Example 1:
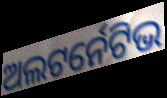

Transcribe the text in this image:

ଅଲଟର୍ନେଟିଭ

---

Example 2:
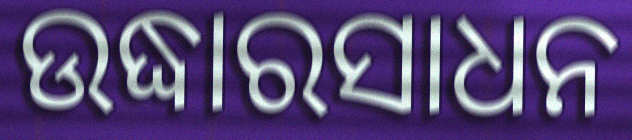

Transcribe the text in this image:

ଉଦ୍ଧାରସାଧନ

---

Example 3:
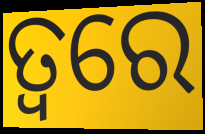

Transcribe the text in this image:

ତ୍ଵରେ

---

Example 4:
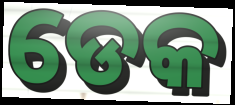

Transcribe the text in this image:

ଡେକ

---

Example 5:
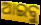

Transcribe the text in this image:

ଆଇବୁ